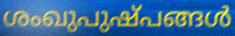
ശംഖുപുഷ്പങ്ങൾ